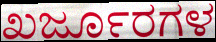
ಖರ್ಜೂರಗಳ